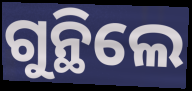
ଗୁନ୍ଥିଲେ